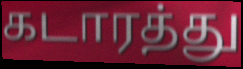
கடாரத்து